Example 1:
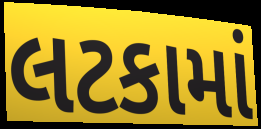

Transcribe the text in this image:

લટકામાં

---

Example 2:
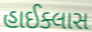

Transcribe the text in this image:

હાઈક્લાસ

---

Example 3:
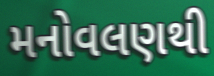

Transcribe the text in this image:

મનોવલણથી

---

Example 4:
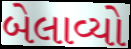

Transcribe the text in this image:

બેલાવ્યો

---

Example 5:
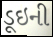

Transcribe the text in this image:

ડૂઇની